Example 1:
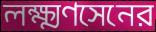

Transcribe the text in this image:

লক্ষ্মণসেনের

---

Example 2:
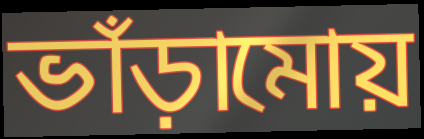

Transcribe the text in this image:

ভাঁড়ামোয়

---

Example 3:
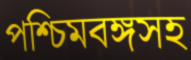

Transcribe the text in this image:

পশ্চিমবঙ্গসহ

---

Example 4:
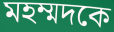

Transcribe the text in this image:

মহম্মদকে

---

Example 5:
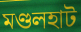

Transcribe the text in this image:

মণ্ডলহাট